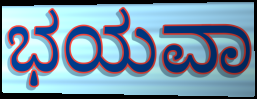
ಭಯವಾ